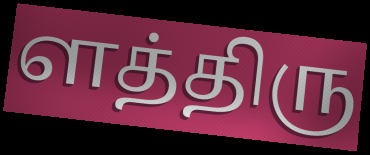
ளத்திரு